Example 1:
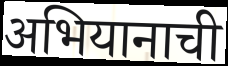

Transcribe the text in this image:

अभियानाची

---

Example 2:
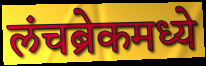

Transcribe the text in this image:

लंचब्रेकमध्ये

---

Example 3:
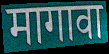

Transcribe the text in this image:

मागावा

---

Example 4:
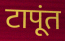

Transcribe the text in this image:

टापूंत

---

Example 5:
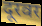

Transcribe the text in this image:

दूरवर